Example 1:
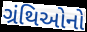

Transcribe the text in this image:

ગ્રંથિઓનો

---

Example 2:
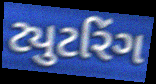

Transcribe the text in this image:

ટ્યુટરિંગ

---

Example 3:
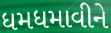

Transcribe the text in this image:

ધમધમાવીને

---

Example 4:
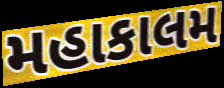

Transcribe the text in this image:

મહાકાલમ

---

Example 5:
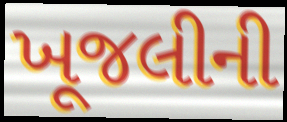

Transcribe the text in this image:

ખૂજલીની